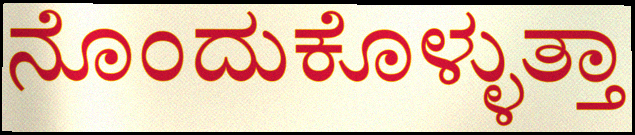
ನೊಂದುಕೊಳ್ಳುತ್ತಾ